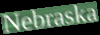
Nebraska